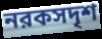
নরকসদৃশ